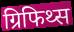
ग्रिफिथ्स